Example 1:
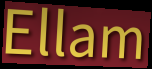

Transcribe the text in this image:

Ellam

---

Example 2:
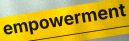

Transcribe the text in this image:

empowerment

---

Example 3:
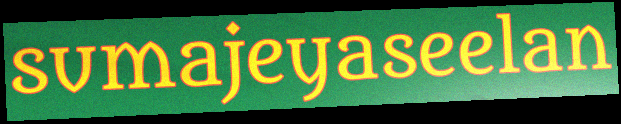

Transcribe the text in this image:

sumajeyaseelan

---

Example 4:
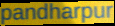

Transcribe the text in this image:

pandharpur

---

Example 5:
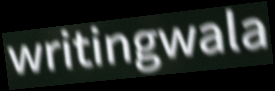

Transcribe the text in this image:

writingwala